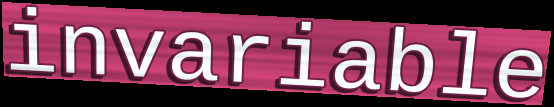
invariable